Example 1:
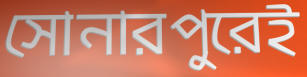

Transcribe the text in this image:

সোনারপুরেই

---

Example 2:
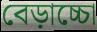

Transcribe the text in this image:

বেড়াচ্চো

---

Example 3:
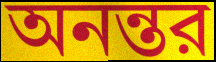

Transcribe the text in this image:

অনন্তর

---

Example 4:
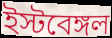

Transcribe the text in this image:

ইস্টবেঙ্গল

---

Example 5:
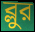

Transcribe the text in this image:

ব্লুর